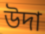
উদা